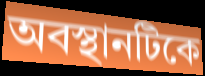
অবস্থানটিকে